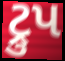
ટ્રુપ